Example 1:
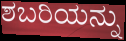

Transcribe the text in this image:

ಶಬರಿಯನ್ನು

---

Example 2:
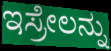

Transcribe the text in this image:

ಇಸ್ರೇಲನ್ನು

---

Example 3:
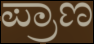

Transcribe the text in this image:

ಪ್ರಾಣ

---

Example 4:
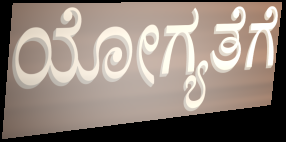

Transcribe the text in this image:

ಯೋಗ್ಯತೆಗೆ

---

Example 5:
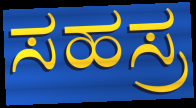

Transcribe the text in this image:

ಸಹಸ್ರ